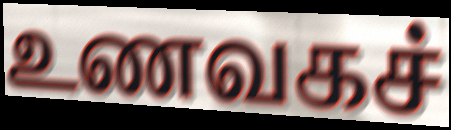
உணவகச்